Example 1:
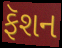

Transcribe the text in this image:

ફૅશન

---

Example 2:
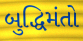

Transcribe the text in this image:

બુદ્ધિમંતો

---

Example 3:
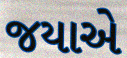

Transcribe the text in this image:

જયાએ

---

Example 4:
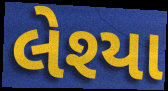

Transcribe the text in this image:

લેશ્યા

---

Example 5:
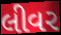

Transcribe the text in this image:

લીવર